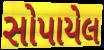
સોપાયેલ